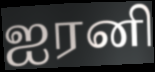
ஐரனி